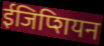
ईजिप्शियन